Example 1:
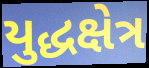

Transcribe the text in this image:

યુદ્ધક્ષેત્ર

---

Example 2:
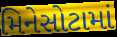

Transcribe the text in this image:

મિનેસોટામાં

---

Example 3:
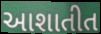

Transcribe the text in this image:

આશાતીત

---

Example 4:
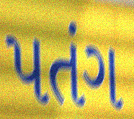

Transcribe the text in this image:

પતંગ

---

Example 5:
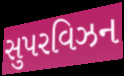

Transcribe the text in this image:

સુપરવિઝન